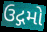
ઉદ્ગમો